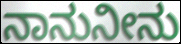
ನಾನುನೀನು